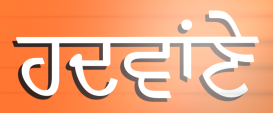
ਹਦਵਾਂਣੇ